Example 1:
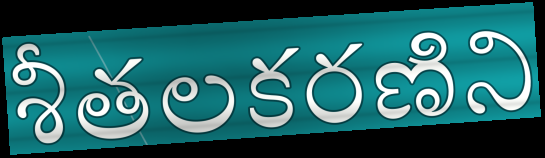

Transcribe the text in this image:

శీతలకరణిని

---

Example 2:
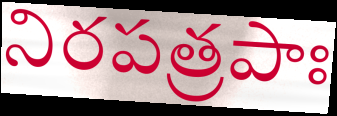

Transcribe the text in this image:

నిరపత్రపాః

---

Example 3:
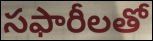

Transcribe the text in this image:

సఫారీలతో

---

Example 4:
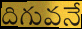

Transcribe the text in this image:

దిగువనే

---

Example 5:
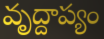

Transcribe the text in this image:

వృద్దాప్యం